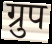
ग्रुप